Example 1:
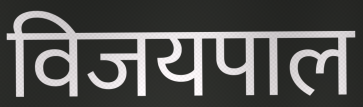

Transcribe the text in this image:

विजयपाल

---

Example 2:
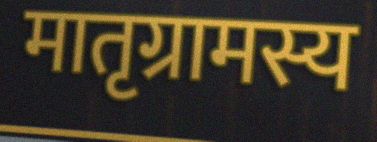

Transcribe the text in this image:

मातृग्रामस्य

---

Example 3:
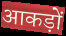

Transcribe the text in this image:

आकड़ों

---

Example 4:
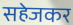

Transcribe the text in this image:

सहेजकर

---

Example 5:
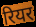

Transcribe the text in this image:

रियर